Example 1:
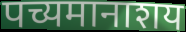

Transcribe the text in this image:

पच्यमानाशय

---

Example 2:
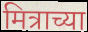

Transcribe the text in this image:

मित्राच्या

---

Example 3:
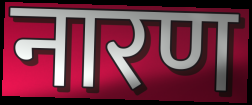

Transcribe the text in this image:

नारण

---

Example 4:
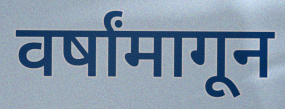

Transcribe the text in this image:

वर्षांमागून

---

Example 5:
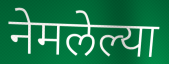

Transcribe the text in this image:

नेमलेल्या